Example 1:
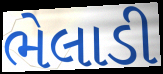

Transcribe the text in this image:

ભેલાડી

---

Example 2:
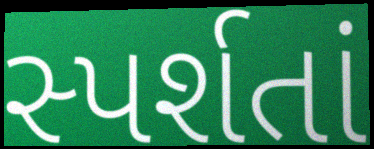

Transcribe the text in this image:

સ્પર્શતાં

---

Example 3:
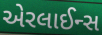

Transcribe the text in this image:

એરલાઈન્સ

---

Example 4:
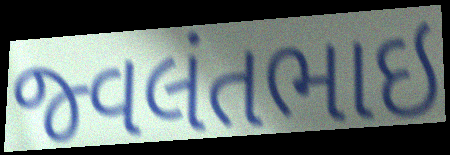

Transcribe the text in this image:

જ્વલંતભાઇ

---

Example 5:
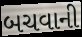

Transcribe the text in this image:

બચવાની